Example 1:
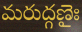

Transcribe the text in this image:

మరుద్గణైః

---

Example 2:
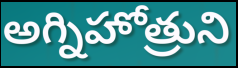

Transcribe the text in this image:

అగ్నిహోత్రుని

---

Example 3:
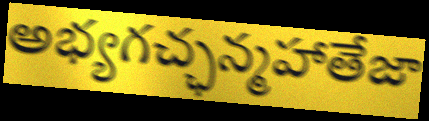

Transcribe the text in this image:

అభ్యగచ్ఛన్మహాతేజా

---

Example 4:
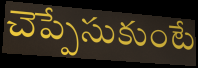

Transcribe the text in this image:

చెప్పేసుకుంటే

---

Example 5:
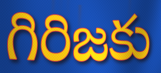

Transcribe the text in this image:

గిరిజకు